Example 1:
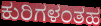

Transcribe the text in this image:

ಕುರಿಗಳಂತಹ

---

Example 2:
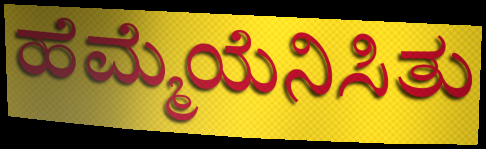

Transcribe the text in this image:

ಹೆಮ್ಮೆಯೆನಿಸಿತು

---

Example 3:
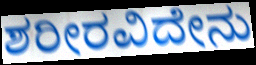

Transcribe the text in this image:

ಶರೀರವಿದೇನು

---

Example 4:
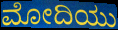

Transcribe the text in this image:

ಮೋದಿಯು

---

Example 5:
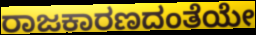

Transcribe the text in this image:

ರಾಜಕಾರಣದಂತೆಯೇ